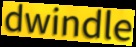
dwindle